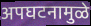
अपघटनामुळे